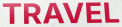
TRAVEL